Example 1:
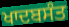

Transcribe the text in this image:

ਖਾਦਬਸੰਤ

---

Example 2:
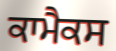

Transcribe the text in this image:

ਕਾਮੈਕਸ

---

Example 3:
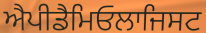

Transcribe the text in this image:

ਐਪੀਡੈਮਿਓਲਾਜਿਸਟ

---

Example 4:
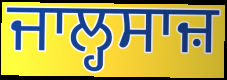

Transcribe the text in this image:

ਜਾਲ੍ਹਸਾਜ਼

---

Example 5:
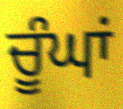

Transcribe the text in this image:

ਚੂੰਘਾਂ